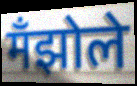
मँझोले